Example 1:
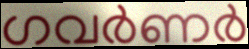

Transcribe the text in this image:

ഗവർണർ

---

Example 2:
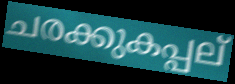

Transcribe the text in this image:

ചരക്കുകപ്പല്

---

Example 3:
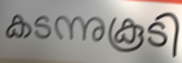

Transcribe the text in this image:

കടന്നുകൂടി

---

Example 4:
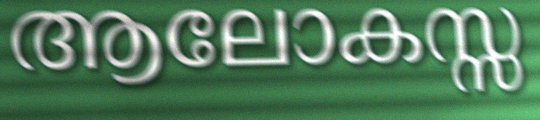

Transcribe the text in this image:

ആലോകസ്സ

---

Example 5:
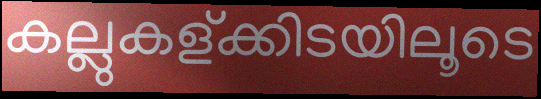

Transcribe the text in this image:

കല്ലുകള്ക്കിടയിലൂടെ